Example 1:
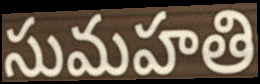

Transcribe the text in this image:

సుమహతి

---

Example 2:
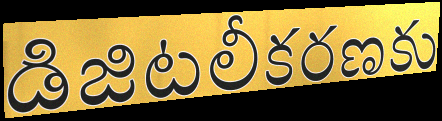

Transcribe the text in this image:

డిజిటలీకరణకు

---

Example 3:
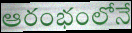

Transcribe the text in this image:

ఆరంభంలోనే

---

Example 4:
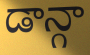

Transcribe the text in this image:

డాన్గా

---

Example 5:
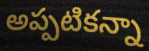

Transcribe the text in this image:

అప్పటికన్నా